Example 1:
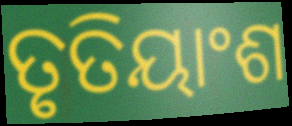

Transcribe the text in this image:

ତୃତିୟାଂଶ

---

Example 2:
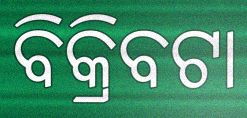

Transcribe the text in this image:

ବିକ୍ରିବଟା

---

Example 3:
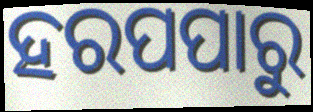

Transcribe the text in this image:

ହରପପାରୁ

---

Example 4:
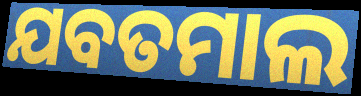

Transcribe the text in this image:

ଯବତମାଲ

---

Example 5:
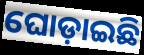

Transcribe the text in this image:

ଘୋଡ଼ାଇଛି